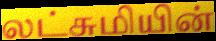
லட்சுமியின்